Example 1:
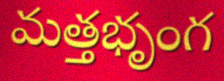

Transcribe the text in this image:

మత్తభృంగ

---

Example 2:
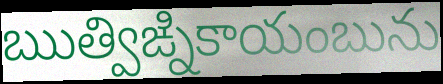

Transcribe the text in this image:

ఋత్విఙ్నికాయంబును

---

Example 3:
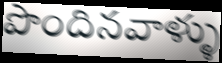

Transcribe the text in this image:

పొందినవాళ్ళు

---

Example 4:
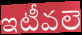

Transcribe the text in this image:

ఇటీవలె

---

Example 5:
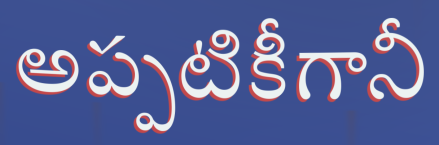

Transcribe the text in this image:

అప్పటికీగానీ